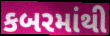
કબરમાંથી